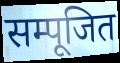
सम्पूजित